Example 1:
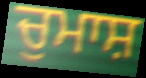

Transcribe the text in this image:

ਚੁਮਾਸ਼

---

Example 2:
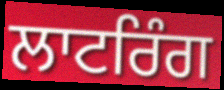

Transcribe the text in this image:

ਲਾਟਰਿੰਗ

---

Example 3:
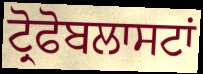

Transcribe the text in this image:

ਟ੍ਰੋਫੋਬਲਾਸਟਾਂ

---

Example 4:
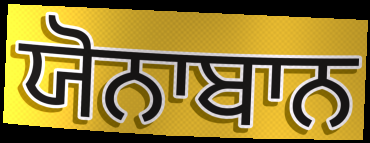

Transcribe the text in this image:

ਯੋਨਾਬਾਨ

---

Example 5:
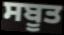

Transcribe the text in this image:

ਸਬੂਤ